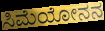
ಸಿಮೆಯೋನನ